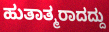
ಹುತಾತ್ಮರಾದದ್ದು